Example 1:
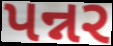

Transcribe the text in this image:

પન્નર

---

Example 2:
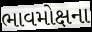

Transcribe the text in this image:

ભાવમોક્ષના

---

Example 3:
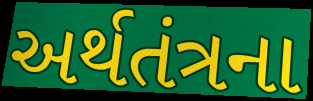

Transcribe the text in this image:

અર્થતંત્રના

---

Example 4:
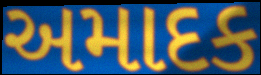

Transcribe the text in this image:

અમાદક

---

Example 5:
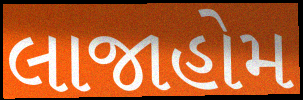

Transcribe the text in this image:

લાજાહોમ